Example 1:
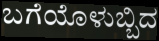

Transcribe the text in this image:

ಬಗೆಯೊಳುಬ್ಬಿದ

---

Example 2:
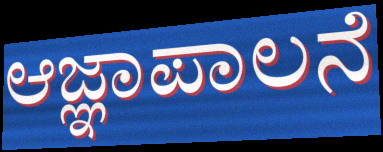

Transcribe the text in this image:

ಆಜ್ಞಾಪಾಲನೆ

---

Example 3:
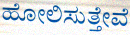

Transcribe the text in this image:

ಹೋಲಿಸುತ್ತೇವೆ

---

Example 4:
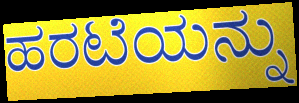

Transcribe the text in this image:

ಹರಟೆಯನ್ನು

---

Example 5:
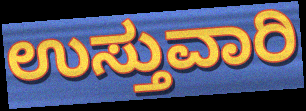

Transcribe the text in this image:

ಉಸ್ತುವಾರಿ